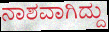
ನಾಶವಾಗಿದ್ದು